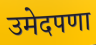
उमेदपणा